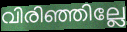
വിരിഞ്ഞില്ലേ